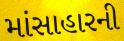
માંસાહારની